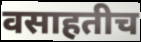
वसाहतीच